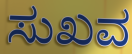
ಸುಖವ